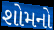
શોમનો